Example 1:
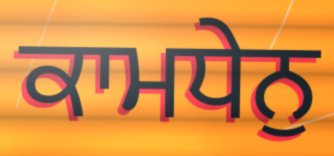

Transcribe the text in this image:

ਕਾਮਧੇਨੁ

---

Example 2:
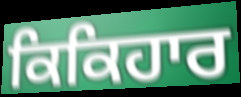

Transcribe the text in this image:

ਕਿਕਿਹਾਰ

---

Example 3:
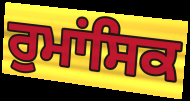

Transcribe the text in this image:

ਰੁਮਾਂਸਿਕ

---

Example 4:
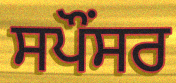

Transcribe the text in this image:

ਸਪੌਂਸਰ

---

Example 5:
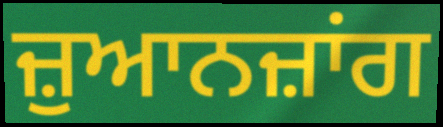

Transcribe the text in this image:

ਜ਼ੁਆਨਜ਼ਾਂਗ